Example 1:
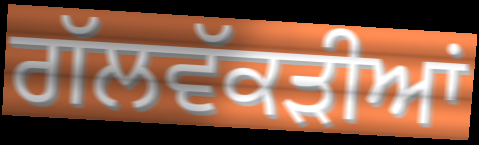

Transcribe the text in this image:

ਗੱਲਵੱਕੜੀਆਂ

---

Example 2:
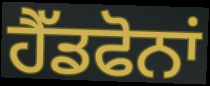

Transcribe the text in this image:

ਹੈੱਡਫੋਨਾਂ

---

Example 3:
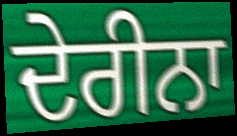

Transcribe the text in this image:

ਦੇਰੀਨਾ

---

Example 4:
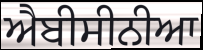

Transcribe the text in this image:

ਐਬੀਸੀਨੀਆ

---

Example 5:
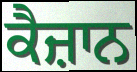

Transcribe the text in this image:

ਕੈਜ਼ਾਨ